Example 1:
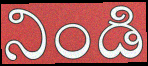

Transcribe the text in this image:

నిండి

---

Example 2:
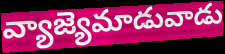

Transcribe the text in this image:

వ్యాజ్యెమాడువాడు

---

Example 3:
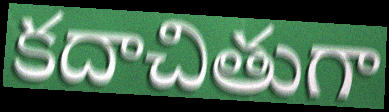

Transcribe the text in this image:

కదాచితుగా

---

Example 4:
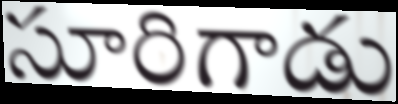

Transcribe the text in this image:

సూరిగాడు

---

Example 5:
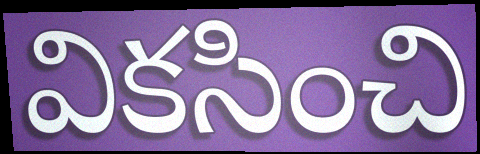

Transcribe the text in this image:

వికసించి